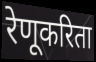
रेणूकरिता